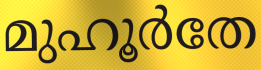
മുഹൂർതേ